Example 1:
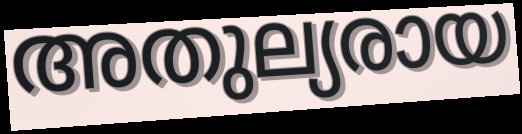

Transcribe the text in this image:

അതുല്യരായ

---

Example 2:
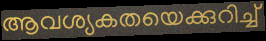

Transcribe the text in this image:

ആവശ്യകതയെക്കുറിച്ച്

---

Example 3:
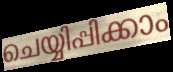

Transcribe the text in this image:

ചെയ്യിപ്പിക്കാം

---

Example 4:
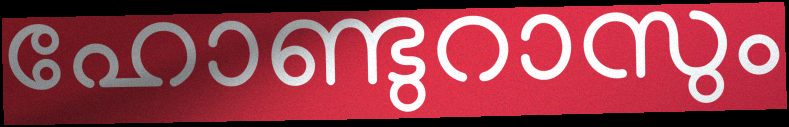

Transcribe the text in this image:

ഹോണ്ടുറാസും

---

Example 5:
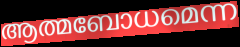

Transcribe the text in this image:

ആത്മബോധമെന്ന